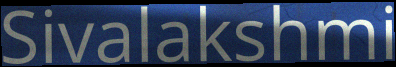
Sivalakshmi